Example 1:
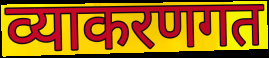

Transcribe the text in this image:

व्याकरणगत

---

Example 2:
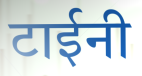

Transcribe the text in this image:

टाईनी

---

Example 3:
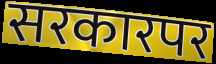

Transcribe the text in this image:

सरकारपर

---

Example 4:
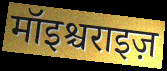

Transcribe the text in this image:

मॉइश्चराइज़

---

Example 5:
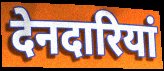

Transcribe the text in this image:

देनदारियां